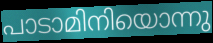
പാടാമിനിയൊന്നു